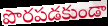
పొరపడకుండా